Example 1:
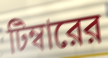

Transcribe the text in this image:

টিম্বারের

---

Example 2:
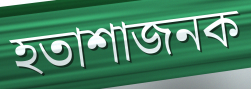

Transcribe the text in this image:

হতাশাজনক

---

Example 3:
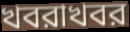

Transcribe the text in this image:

খবরাখবর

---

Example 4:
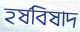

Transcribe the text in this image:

হর্ষবিষাদ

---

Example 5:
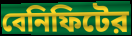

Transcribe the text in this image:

বেনিফিটের